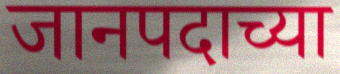
जानपदाच्या